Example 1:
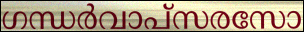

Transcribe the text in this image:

ഗന്ധർവാപ്സരസോ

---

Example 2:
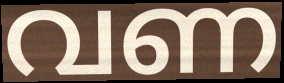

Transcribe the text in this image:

വണ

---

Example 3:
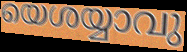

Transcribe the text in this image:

യെശയ്യാവു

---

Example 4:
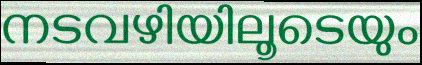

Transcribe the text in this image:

നടവഴിയിലൂടെയും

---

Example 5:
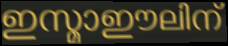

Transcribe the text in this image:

ഇസ്മാഈലിന്